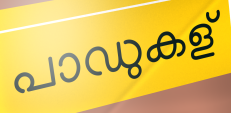
പാഡുകള്